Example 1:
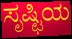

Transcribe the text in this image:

ಸೃಷ್ಟಿಯ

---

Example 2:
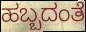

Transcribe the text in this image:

ಹಬ್ಬದಂತೆ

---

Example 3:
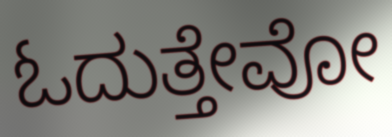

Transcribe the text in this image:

ಓದುತ್ತೇವೋ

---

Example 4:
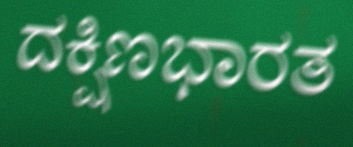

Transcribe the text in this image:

ದಕ್ಷಿಣಭಾರತ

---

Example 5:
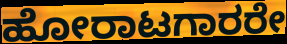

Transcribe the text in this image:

ಹೋರಾಟಗಾರರೇ